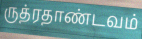
ருத்ரதாண்டவம்